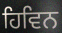
ਹਿਵਿਨ